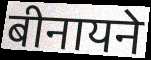
बीनायने